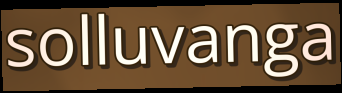
solluvanga